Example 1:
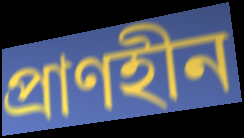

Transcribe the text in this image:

প্ৰাণহীন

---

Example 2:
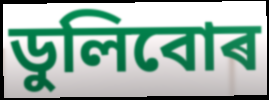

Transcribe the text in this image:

ডুলিবোৰ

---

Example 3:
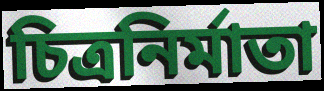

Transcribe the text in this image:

চিত্ৰনিৰ্মাতা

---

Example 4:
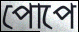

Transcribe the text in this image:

পোপে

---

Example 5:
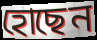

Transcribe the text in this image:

হোছেন